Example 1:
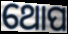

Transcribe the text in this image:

ଥୋପ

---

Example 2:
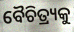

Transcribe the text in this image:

ବୈଚିତ୍ର୍ୟକୁ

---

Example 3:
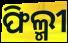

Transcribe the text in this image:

ଫିଲ୍ମୀ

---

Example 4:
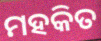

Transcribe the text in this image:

ମହକିତ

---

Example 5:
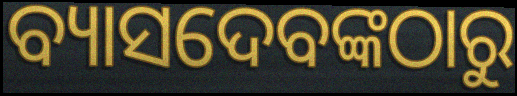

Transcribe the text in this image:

ବ୍ୟାସଦେବଙ୍କଠାରୁ